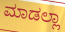
ಮಾಡಲ್ಲಾ